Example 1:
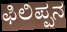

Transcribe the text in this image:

ಫಿಲಿಪ್ಪನ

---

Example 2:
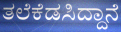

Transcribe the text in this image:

ತಲೆಕೆಡಸಿದ್ದಾನೆ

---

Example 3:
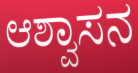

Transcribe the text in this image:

ಆಶ್ವಾಸನ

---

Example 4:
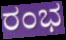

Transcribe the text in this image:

ರಂಭ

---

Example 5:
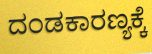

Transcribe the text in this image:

ದಂಡಕಾರಣ್ಯಕ್ಕೆ